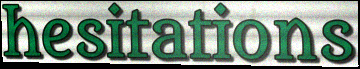
hesitations